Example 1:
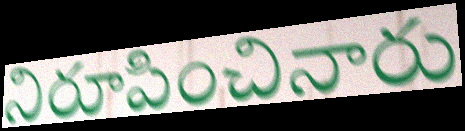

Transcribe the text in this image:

నిరూపించినారు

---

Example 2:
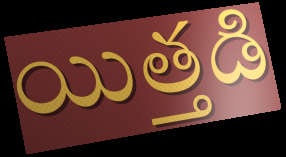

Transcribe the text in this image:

యిత్తడి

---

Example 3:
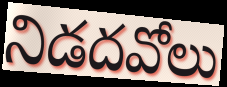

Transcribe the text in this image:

నిడదవోలు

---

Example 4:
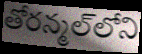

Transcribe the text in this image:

తోరన్మల్‌లోని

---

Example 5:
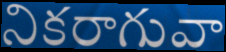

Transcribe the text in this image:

నికరాగువా